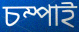
চম্পাই